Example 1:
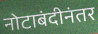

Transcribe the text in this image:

नोटाबंदीनंतर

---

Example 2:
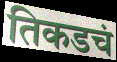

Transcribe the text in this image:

तिकडचं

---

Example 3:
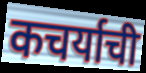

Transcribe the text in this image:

कचर्याची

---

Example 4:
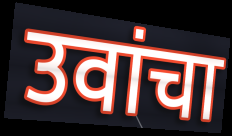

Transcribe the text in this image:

उवांचा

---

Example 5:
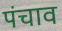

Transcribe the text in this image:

पंचाव